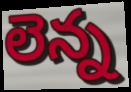
లెన్న